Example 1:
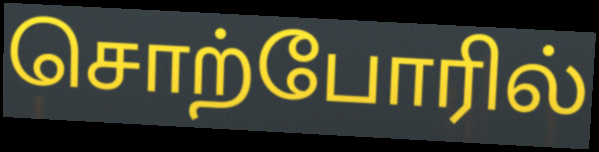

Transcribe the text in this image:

சொற்போரில்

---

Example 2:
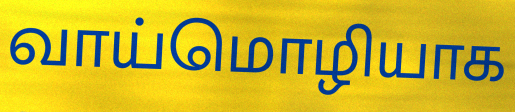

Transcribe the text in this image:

வாய்மொழியாக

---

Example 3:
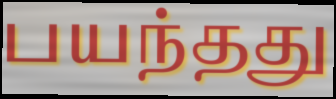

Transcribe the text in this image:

பயந்தது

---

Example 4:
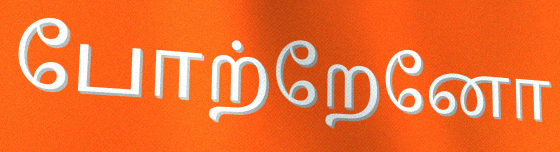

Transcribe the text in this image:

போற்றேனோ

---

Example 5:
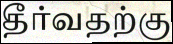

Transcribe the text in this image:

தீர்வதற்கு